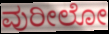
ವುರೀಲೋ